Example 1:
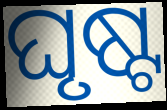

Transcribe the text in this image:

ଘୃଷ୍ଟ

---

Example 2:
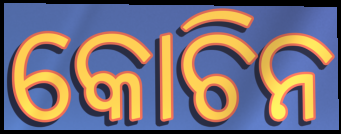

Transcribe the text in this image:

କୋଚିନ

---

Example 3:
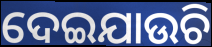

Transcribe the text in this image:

ଦେଇଯାଉଚି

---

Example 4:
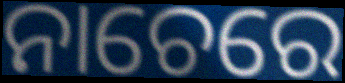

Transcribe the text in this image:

ନାଚେରେ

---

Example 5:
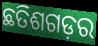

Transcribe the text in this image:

ଛତିଶଗଡ଼ର